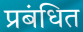
प्रबंधित